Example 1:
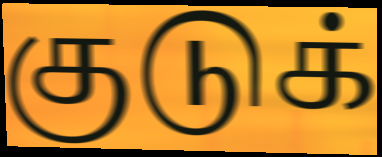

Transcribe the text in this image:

குடுக்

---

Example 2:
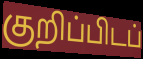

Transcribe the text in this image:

குறிப்பிடப்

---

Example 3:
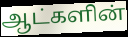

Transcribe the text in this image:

ஆட்களின்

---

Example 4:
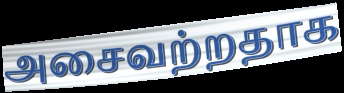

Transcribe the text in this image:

அசைவற்றதாக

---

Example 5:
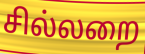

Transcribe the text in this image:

சில்லறை